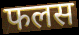
फलस